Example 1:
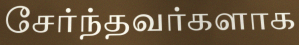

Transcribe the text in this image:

சேர்ந்தவர்களாக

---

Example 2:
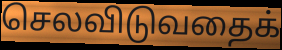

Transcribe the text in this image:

செலவிடுவதைக்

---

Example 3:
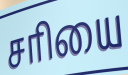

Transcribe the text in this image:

சரியை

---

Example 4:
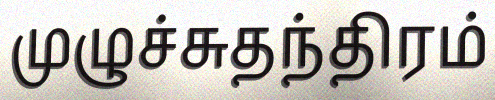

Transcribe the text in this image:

முழுச்சுதந்திரம்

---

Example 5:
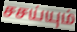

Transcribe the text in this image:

சசய்யும்